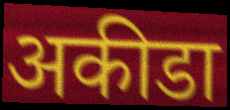
अकीडा